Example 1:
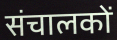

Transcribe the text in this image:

संचालकों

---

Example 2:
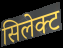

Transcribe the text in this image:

सिलेक्ट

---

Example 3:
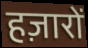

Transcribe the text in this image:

हज़ारों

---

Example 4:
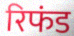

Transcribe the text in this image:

रिफंड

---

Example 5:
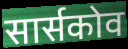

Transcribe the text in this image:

सार्सकोव